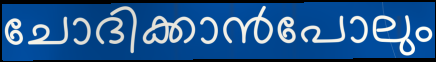
ചോദിക്കാൻപോലും